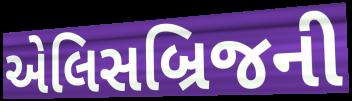
એલિસબ્રિજની